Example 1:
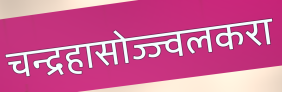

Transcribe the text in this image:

चन्द्रहासोज्ज्वलकरा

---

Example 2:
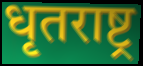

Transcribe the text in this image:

धृतराष्ट्र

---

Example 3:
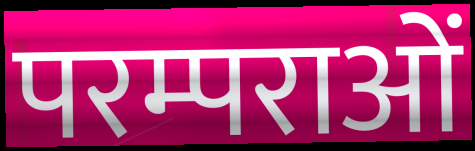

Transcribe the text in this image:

परम्पराओं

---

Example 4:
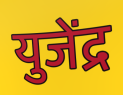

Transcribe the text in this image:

युजेंद्र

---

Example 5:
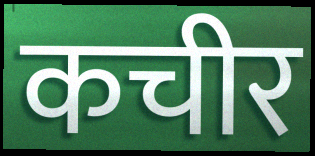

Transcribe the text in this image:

कचीर